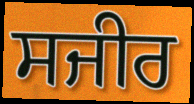
ਸਜੀਰ